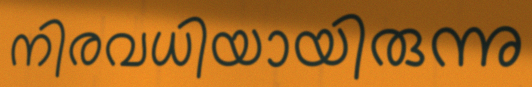
നിരവധിയായിരുന്നു